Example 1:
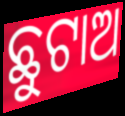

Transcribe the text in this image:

ଛୁଟାଅ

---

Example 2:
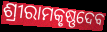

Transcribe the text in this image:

ଶ୍ରୀରାମକୃଷ୍ଣଦେବ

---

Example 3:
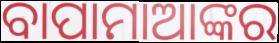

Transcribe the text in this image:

ବାପାମାଆଙ୍କର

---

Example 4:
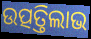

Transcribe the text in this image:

ଉତ୍ପତ୍ତିଲାଭ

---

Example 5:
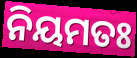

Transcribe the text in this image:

ନିୟମତଃ